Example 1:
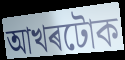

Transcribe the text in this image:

আখৰটোক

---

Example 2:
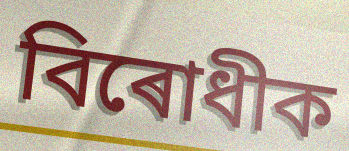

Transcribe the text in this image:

বিৰোধীক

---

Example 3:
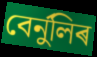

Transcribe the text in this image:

বেৰ্নুলিৰ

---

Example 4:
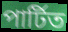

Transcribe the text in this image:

পাৰ্টিত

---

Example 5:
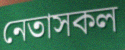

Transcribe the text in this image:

নেতাসকল